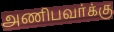
அணிபவர்க்கு